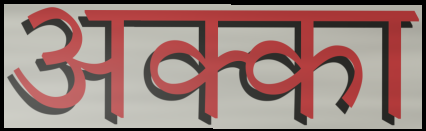
अक्का